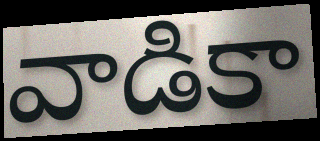
వాడికా